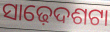
ସାଢ଼େଦଶଟା